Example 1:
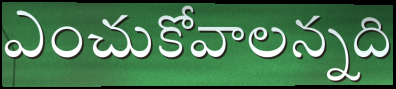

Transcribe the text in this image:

ఎంచుకోవాలన్నది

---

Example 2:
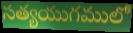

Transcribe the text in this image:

సత్యయుగములో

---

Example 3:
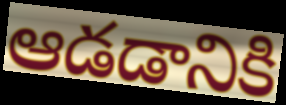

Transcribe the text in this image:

ఆడడానికి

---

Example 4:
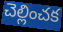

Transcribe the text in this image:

చెల్లించక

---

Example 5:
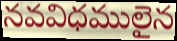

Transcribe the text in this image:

నవవిధములైన